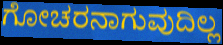
ಗೋಚರನಾಗುವುದಿಲ್ಲ